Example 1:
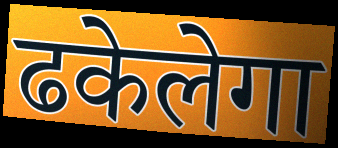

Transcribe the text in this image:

ढकेलेगा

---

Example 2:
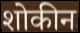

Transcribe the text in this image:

शोकीन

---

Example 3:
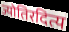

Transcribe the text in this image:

ज्योतिरदित्य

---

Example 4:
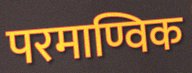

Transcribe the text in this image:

परमाण्विक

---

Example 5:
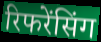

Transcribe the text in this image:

रिफरेंसिंग